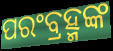
ପରଂବ୍ରହ୍ମଙ୍କ